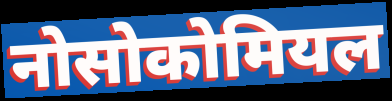
नोसोकोमियल